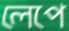
লেপে